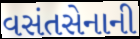
વસંતસેનાની